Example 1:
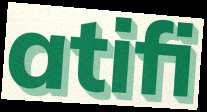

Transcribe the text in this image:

atifi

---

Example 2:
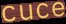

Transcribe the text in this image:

cuce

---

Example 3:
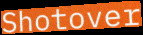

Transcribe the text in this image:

Shotover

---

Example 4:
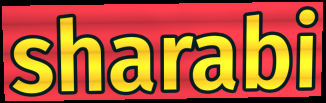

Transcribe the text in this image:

sharabi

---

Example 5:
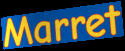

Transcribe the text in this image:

Marret